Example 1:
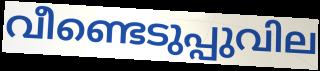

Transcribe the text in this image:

വീണ്ടെടുപ്പുവില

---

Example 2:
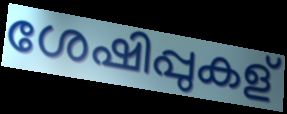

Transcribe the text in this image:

ശേഷിപ്പുകള്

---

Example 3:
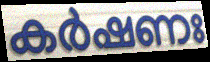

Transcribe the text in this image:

കർഷണഃ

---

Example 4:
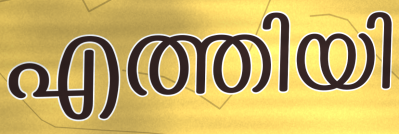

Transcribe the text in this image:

എത്തിയി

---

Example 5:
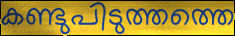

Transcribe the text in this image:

കണ്ടുപിടുത്തത്തെ